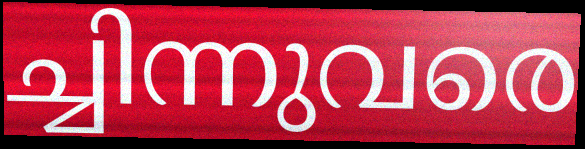
ച്ചിന്നുവരെ